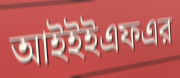
আইইইএফএর